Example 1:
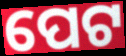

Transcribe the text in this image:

ପେଟ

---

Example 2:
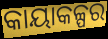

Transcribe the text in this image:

କାୟାକଳ୍ପର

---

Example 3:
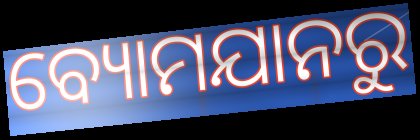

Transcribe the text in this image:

ବ୍ୟୋମଯାନରୁ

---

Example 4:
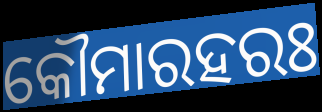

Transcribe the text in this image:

କୌମାରହରଃ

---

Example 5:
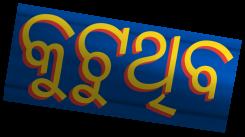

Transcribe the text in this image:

କୁଟୁଥିବ